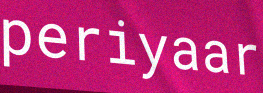
periyaar